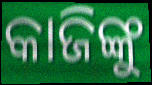
କାଜିଙ୍କୁ